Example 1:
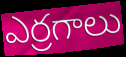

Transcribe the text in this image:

ఎర్రగాలు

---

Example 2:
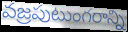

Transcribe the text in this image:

వజ్రపుటుంగరాన్ని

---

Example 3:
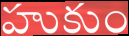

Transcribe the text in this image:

హుకుం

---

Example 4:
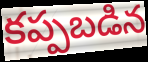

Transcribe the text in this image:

కప్పబడిన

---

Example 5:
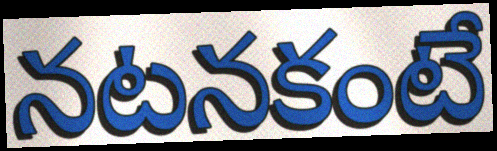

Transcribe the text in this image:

నటనకంటే